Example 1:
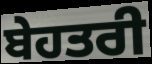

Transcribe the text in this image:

ਬੇਹਤਰੀ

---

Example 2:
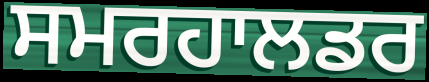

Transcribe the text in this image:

ਸਮਰਹਾਲਡਰ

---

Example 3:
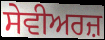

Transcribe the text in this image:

ਸੇਵੀਅਰਜ਼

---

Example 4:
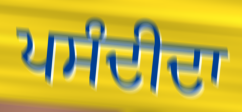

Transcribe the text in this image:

ਪਸੰਦੀਦਾ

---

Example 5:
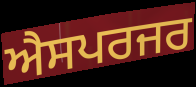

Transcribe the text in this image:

ਐਸਪਰਜਰ